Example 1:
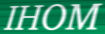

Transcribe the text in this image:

IHOM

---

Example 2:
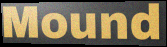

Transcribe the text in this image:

Mound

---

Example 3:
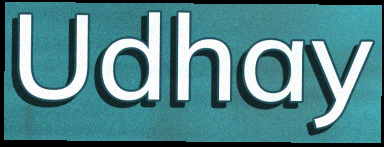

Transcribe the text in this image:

Udhay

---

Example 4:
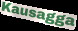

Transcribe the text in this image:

Kausagga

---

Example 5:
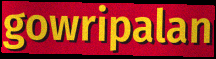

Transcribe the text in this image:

gowripalan